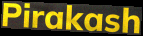
Pirakash